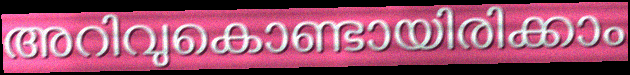
അറിവുകൊണ്ടായിരിക്കാം